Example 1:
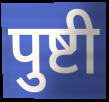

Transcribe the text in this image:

पुष्टी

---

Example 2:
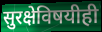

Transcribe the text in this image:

सुरक्षेविषयीही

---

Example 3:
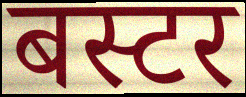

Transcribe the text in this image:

बस्टर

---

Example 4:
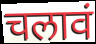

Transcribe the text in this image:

चलावं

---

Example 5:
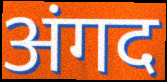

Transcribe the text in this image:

अंगद